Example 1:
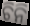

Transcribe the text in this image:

ଚିନି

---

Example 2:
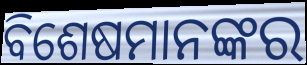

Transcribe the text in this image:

ବିଶେଷମାନଙ୍କର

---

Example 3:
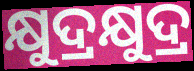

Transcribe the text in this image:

କ୍ଷୁଦ୍ରକ୍ଷୁଦ୍ର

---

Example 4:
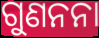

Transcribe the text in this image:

ଗୁଣନନା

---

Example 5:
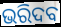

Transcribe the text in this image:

ଭରିଦବ